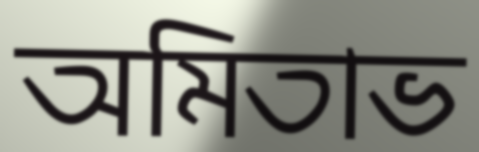
অমিতাভ